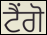
ਟੈਂਗੋ